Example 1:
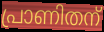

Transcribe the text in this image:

പ്രാണിതന്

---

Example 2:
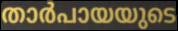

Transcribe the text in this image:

താർപായയുടെ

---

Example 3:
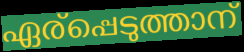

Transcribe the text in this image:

ഏര്പ്പെടുത്താന്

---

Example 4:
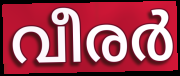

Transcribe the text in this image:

വീരർ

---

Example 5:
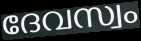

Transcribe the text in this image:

ദേവസ്വം